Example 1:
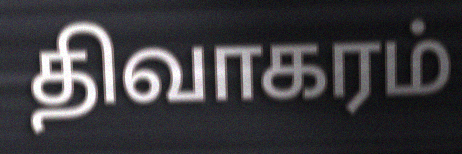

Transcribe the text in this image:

திவாகரம்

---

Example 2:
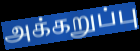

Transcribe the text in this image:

அக்கறுப்பு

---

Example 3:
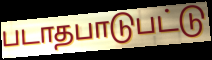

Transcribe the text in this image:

படாதபாடுபட்டு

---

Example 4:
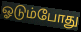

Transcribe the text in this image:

ஓடும்போது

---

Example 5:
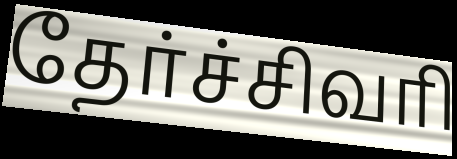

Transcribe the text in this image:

தேர்ச்சிவரி